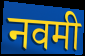
नवमी